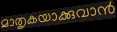
മാതൃകയാക്കുവാൻ